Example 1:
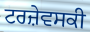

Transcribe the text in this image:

ਟਰਜ਼ੇਵਸਕੀ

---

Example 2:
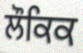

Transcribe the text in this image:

ਲੌਕਿਕ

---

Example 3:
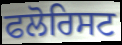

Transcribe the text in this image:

ਫਲੋਰਿਸਟ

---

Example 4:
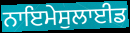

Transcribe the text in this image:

ਨਾਇਮੇਸੁਲਾਈਡ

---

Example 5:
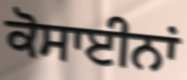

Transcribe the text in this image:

ਕੋਸਾਈਨਾਂ